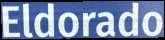
Eldorado